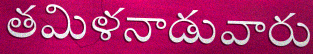
తమిళనాడువారు